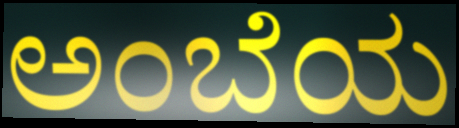
ಅಂಬೆಯ